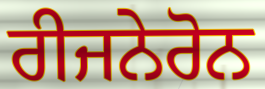
ਰੀਜਨੇਰੋਨ